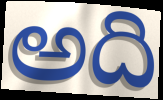
అది